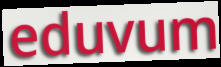
eduvum